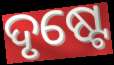
ଦୃଷ୍ଟେ